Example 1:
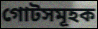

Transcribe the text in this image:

গোটসমূহক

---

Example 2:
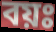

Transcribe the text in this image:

বয়ঃ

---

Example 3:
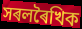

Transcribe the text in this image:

সৰলৰৈখিক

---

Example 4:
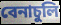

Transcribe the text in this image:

বেনাচুলি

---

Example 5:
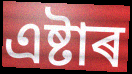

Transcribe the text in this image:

এষ্টাৰ